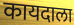
कायदाला